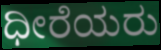
ಧೀರೆಯರು